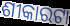
ଶୀକାରଟା